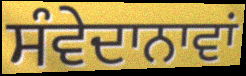
ਸੰਵੇਦਾਨਾਵਾਂ